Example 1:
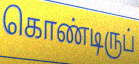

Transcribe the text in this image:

கொண்டிருப்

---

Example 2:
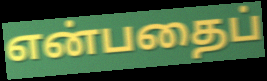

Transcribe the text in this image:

என்பதைப்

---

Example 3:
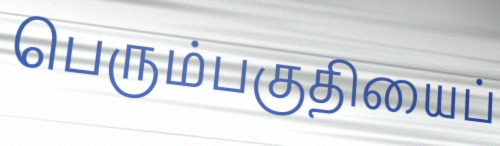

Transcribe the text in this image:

பெரும்பகுதியைப்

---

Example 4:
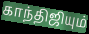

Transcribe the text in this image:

காந்திஜியும்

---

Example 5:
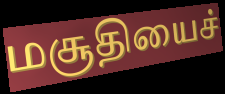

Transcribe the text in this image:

மசூதியைச்